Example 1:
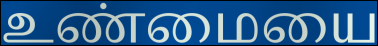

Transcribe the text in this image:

உண்மையை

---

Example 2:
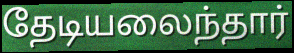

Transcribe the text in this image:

தேடியலைந்தார்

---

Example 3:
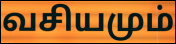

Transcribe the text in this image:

வசியமும்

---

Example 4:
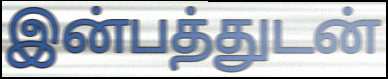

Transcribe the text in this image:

இன்பத்துடன்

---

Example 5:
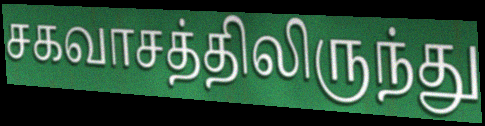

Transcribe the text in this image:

சகவாசத்திலிருந்து